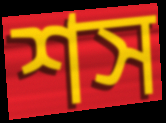
শস